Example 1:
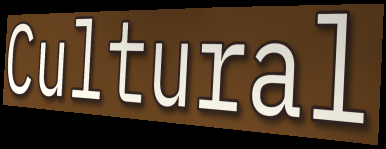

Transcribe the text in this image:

Cultural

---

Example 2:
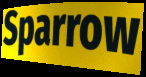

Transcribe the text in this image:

Sparrow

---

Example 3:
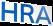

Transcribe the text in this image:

HRA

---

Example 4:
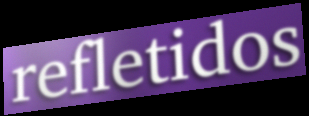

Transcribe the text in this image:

refletidos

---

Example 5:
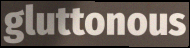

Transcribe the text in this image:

gluttonous